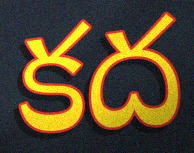
కద